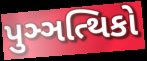
પુઞ્ઞત્થિકો